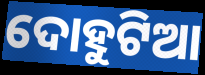
ଦୋହୁଟିଆ